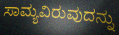
ಸಾಮ್ಯವಿರುವುದನ್ನು